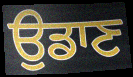
ਉਡਾਣ